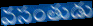
వసంతుడు